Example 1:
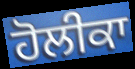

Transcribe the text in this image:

ਹੋਲੀਕਾ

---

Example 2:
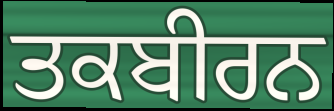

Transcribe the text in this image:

ਤਕਬੀਰਨ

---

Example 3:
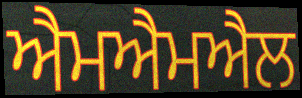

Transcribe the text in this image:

ਐਮਐਮਐਲ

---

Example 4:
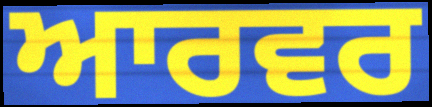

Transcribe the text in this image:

ਆਰਵਰ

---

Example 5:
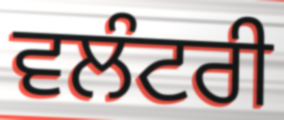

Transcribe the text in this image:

ਵਲੰਟਰੀ